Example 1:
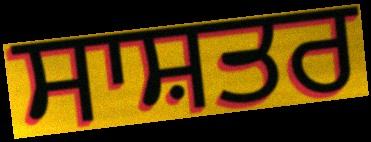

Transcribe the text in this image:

ਸਾਸ਼ਤਰ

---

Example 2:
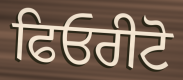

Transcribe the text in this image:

ਫਿਓਰੀਟੋ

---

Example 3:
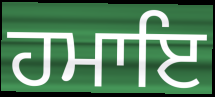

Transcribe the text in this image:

ਹਮਾਇ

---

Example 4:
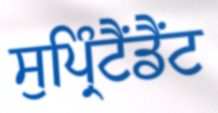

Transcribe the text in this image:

ਸੁਪ੍ਰਿੰਟੈਂਡੈਂਟ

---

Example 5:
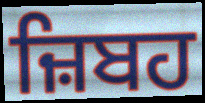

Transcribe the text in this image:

ਜ਼ਿਬਹ